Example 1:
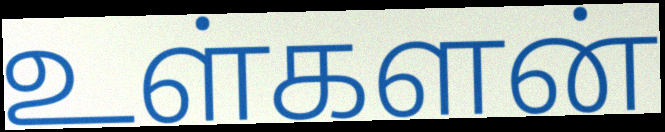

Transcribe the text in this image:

உள்களன்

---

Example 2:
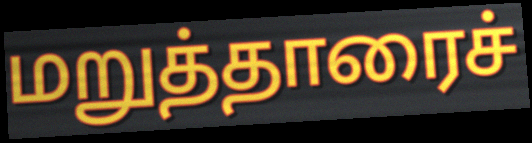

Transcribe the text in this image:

மறுத்தாரைச்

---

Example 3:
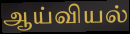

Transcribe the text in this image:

ஆய்வியல்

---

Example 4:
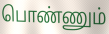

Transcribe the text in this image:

பொண்ணும்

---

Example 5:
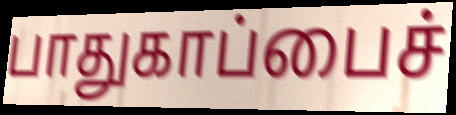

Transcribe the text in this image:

பாதுகாப்பைச்